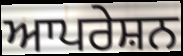
ਆਪਰੇਸ਼ਨ